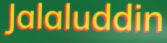
Jalaluddin